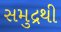
સમુદ્રથી